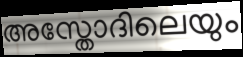
അസ്തോദിലെയും